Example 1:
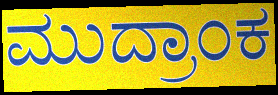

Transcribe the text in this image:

ಮುದ್ರಾಂಕ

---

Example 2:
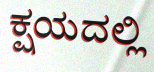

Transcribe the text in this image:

ಕ್ಷಯದಲ್ಲಿ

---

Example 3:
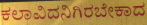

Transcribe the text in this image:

ಕಲಾವಿದನಿಗಿರಬೇಕಾದ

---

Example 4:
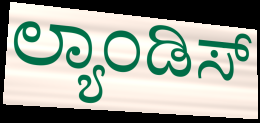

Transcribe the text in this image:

ಲ್ಯಾಂಡಿಸ್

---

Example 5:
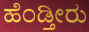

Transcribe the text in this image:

ಹೆಂಡ್ತೀರು